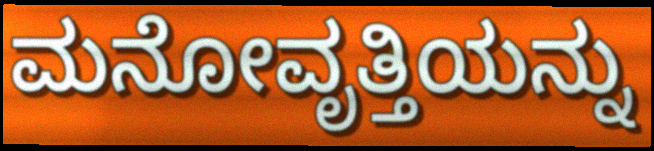
ಮನೋವೃತ್ತಿಯನ್ನು